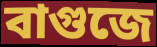
বাগুজে